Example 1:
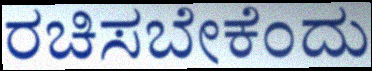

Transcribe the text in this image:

ರಚಿಸಬೇಕೆಂದು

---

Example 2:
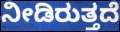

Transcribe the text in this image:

ನೀಡಿರುತ್ತದೆ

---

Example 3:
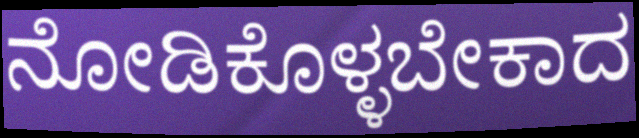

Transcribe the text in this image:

ನೋಡಿಕೊಳ್ಳಬೇಕಾದ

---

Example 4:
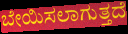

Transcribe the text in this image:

ಬೇಯಿಸಲಾಗುತ್ತದೆ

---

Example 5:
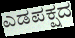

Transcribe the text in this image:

ಎಡಪಕ್ಷದ